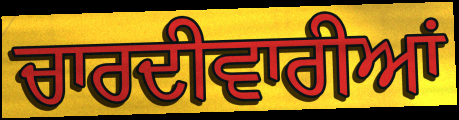
ਚਾਰਦੀਵਾਰੀਆਂ